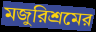
মজুরিশ্রমের